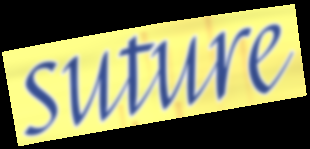
suture